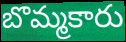
బొమ్మకారు